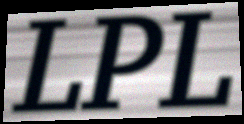
LPL